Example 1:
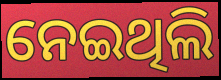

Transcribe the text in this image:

ନେଇଥିଲି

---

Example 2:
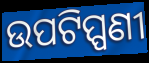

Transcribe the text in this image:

ଉପଟିପ୍ପଣୀ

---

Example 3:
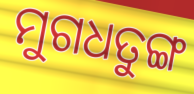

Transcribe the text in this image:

ମୁଗଧତୁଙ୍ଗ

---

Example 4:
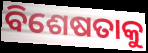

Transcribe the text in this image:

ବିଶେଷତାକୁ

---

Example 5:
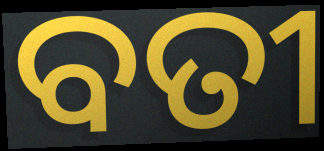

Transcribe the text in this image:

ବତୀ